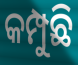
କମ୍ପୁଛି